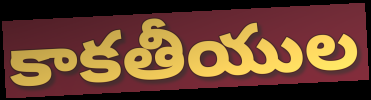
కాకతీయుల